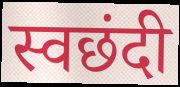
स्वछंदी